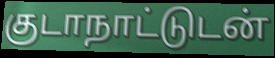
குடாநாட்டுடன்